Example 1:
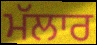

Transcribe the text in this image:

ਮੱਲਾਰ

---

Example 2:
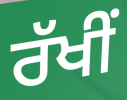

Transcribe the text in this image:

ਰੱਖੀਂ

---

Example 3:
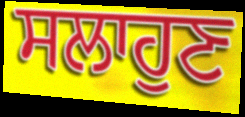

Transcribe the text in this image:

ਸਲਾਹੁਣ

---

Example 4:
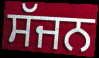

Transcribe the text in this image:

ਸੱਜਨ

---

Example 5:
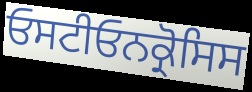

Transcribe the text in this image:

ਓਸਟੀਓਨਕ੍ਰੋਸਿਸ